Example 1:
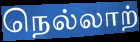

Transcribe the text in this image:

நெல்லாற்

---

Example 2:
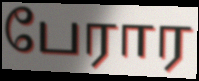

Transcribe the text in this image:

பேரார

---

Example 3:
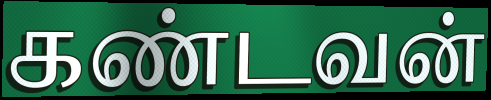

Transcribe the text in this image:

கண்டவன்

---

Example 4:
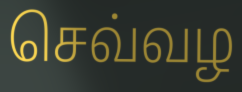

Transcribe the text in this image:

செவ்வழ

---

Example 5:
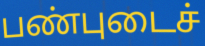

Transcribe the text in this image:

பண்புடைச்